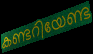
കണ്ടറിയേണ്ട